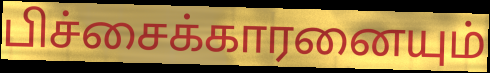
பிச்சைக்காரனையும்